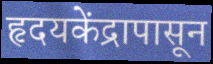
हृदयकेंद्रापासून